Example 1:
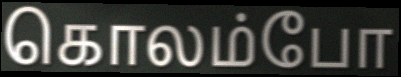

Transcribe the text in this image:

கொலம்போ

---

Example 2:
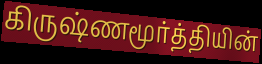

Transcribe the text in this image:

கிருஷ்ணமூர்த்தியின்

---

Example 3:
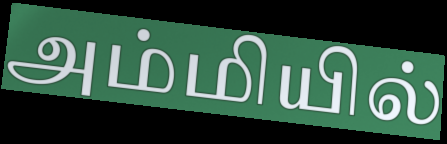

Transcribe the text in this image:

அம்மியில்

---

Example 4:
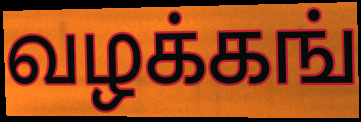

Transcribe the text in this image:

வழக்கங்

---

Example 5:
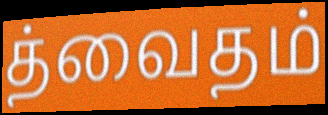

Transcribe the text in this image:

த்வைதம்